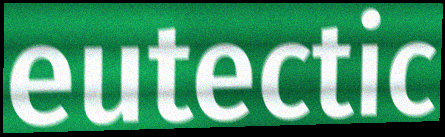
eutectic